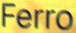
Ferro